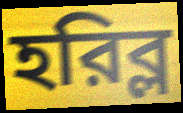
হরিব্ল